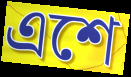
এশে